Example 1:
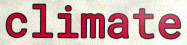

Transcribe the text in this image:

climate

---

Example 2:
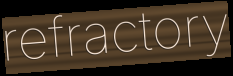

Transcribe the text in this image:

refractory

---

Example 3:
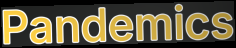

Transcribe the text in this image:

Pandemics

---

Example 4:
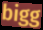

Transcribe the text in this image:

bigg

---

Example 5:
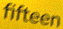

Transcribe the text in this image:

fifteen